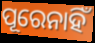
ପୂରେନାହିଁ